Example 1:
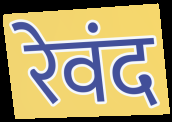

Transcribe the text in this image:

रेवंद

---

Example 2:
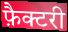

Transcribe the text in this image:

फ़ैक्टरी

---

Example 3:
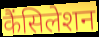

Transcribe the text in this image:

कैंसिलेशन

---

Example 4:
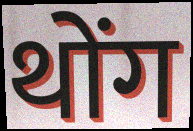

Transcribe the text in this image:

थोंग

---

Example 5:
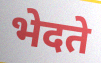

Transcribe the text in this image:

भेदते